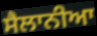
ਸੈਲਾਨੀਆ